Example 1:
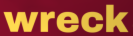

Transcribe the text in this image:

wreck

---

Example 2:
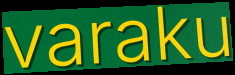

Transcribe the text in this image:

varaku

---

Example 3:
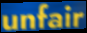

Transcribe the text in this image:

unfair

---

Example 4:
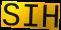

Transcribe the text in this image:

SIH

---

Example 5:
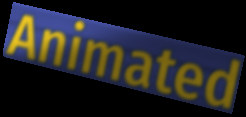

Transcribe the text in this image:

Animated